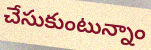
చేసుకుంటున్నాం